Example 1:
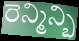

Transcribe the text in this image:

రెన్మిన్బి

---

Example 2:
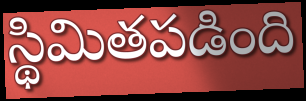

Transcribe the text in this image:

స్థిమితపడింది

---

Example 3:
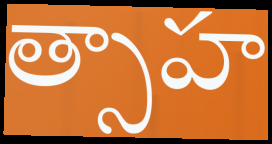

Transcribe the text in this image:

త్సాహ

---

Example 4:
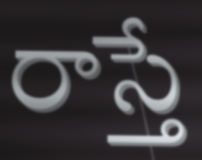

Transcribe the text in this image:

రాస్తే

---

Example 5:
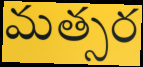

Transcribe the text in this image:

మత్సర